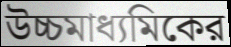
উচ্চমাধ্যমিকের